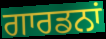
ਗਾਰਡਨਾਂ